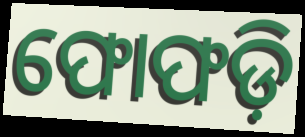
ଫୋଫଡ଼ି